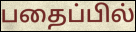
பதைப்பில்